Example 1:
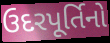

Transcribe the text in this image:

ઉદરપૂર્તિનો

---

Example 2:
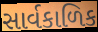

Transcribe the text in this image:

સાર્વકાળિક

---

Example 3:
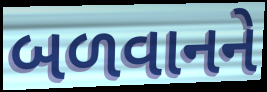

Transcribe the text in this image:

બળવાનને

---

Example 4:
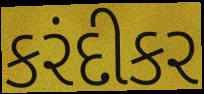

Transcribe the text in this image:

કરંદીકર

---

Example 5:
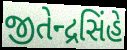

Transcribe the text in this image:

જીતેન્દ્રસિંહે